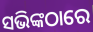
ସଭିଙ୍କଠାରେ